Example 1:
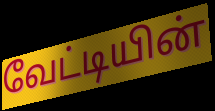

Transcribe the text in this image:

வேட்டியின்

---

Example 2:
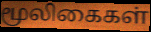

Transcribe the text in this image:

மூலிகைகள்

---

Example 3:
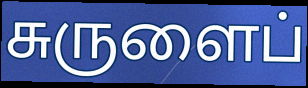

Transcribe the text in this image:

சுருளைப்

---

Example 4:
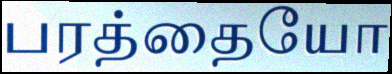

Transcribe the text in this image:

பரத்தையோ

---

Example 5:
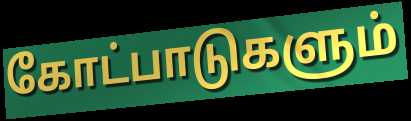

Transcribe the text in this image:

கோட்பாடுகளும்